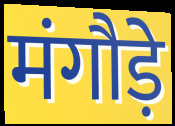
मंगौड़े